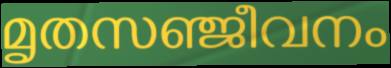
മൃതസഞ്ജീവനം